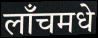
लाँचमधे